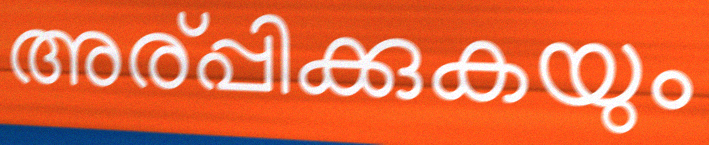
അര്പ്പിക്കുകയും